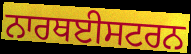
ਨਾਰਥਈਸਟਰਨ